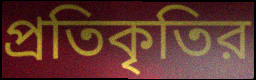
প্রতিকৃতির